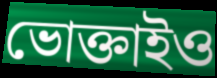
ভোক্তাইও